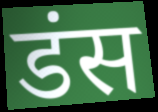
डंस